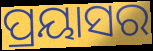
ପ୍ରୟାସର